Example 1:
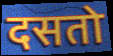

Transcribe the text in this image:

दसतो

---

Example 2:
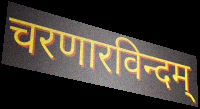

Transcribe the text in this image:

चरणारविन्दम्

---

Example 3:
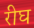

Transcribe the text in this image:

रीघ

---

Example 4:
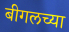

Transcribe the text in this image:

बीगलच्या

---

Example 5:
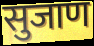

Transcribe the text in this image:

सुजाण